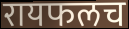
रायफलच